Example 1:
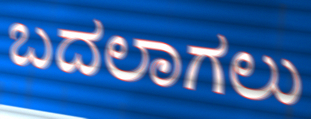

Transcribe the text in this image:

ಬದಲಾಗಲು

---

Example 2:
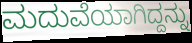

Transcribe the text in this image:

ಮದುವೆಯಾಗಿದ್ದನ್ನು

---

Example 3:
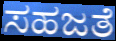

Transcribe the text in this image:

ಸಹಜತೆ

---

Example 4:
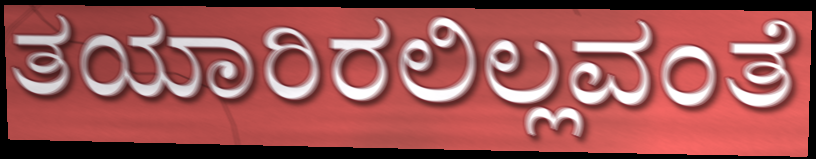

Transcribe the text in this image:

ತಯಾರಿರಲಿಲ್ಲವಂತೆ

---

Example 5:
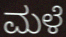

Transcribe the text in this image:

ಮಳೆ